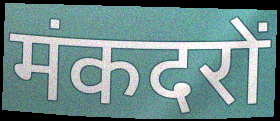
मंकदरों